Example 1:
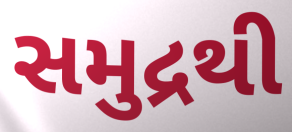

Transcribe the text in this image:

સમુદ્રથી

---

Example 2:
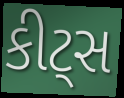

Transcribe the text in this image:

કીટ્સ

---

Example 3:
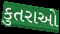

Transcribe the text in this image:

કુતરાઓ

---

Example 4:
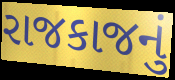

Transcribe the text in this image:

રાજકાજનું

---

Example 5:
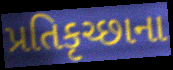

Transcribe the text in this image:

પ્રતિકૃચ્છાના